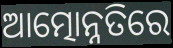
ଆତ୍ମୋନ୍ନତିରେ